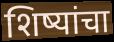
शिष्यांचा